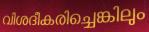
വിശദീകരിച്ചെങ്കിലും